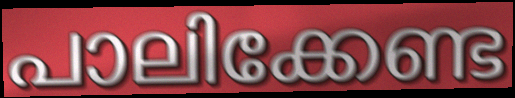
പാലിക്കേണ്ട